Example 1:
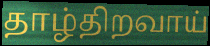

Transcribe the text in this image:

தாழ்திறவாய்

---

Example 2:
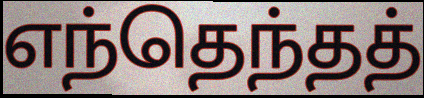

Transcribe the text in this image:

எந்தெந்தத்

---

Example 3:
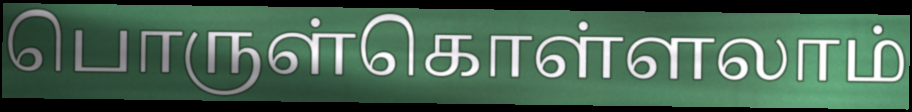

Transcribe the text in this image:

பொருள்கொள்ளலாம்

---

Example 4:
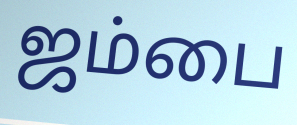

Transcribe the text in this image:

ஜம்பை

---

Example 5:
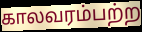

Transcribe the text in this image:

காலவரம்பற்ற